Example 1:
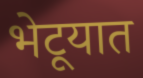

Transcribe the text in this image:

भेटूयात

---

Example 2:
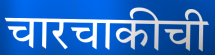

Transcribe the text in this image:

चारचाकीची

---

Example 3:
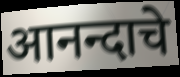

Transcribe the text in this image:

आनन्दाचे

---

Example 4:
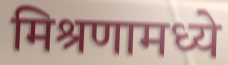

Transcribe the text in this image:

मिश्रणामध्ये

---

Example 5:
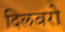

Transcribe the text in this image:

दिलबरो